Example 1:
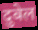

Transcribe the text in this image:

दुबेल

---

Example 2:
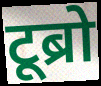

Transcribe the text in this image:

टूब्रो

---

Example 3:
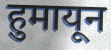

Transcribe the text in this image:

हुमायून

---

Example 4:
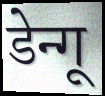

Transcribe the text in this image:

डेन्गू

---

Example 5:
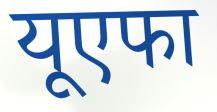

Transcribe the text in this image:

यूएफा